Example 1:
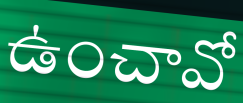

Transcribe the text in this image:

ఉంచావో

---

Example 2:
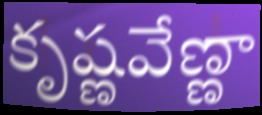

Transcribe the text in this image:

కృష్ణవేణ్ణా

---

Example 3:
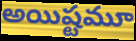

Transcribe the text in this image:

అయిష్టమూ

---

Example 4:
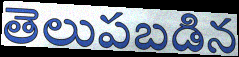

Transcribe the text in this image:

తెలుపబడిన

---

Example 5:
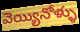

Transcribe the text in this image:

వెయ్యినోళ్ళు